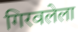
गिरवलेला